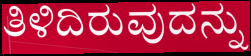
ತಿಳಿದಿರುವುದನ್ನು